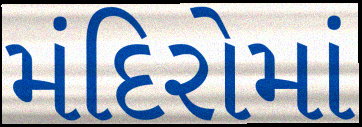
મંદિરોમાં